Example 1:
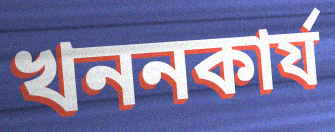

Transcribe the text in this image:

খননকাৰ্য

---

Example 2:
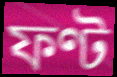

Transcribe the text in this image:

ফণ্ট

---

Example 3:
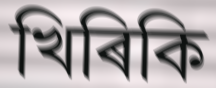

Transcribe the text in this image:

খিৰিকি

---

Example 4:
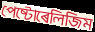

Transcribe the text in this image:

পেষ্টোৰেলিজিম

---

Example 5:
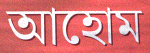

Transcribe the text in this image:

আহোম